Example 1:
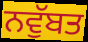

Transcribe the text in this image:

ਨਵੁੱਬਤ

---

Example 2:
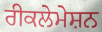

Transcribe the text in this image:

ਰੀਕਲੇਮੇਸ਼ਨ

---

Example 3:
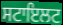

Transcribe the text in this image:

ਸਟਾਇਲਟ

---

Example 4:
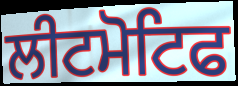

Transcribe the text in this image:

ਲੀਟਮੋਟਿਫ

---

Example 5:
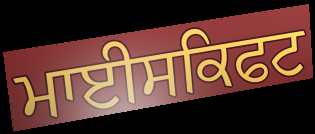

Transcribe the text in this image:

ਮਾਈਸਕਿਫਟ